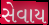
સેવાય